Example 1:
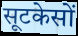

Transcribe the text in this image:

सूटकेसों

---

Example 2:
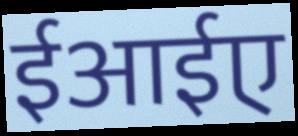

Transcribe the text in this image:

ईआईए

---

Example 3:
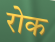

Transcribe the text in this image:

रोक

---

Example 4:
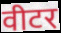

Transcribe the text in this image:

वीटर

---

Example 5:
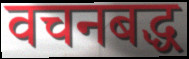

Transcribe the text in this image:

वचनबद्ध